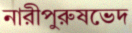
নারীপুরুষভেদ